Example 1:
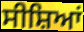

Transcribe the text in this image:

ਸੀਸ਼ਿਆਂ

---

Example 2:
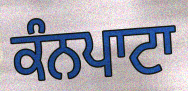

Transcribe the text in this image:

ਕੰਨਪਾਟਾ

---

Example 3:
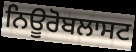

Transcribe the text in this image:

ਨਿਊਰੋਬਲਾਸਟ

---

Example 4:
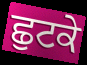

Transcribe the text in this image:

ਛੁਟਕੇ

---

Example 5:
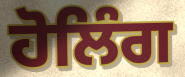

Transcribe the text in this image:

ਹੋਲਿੰਗ